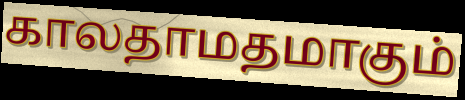
காலதாமதமாகும்